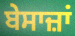
ਬੇਸਾਜ਼ਾਂ